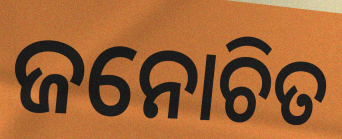
ଜନୋଚିତ